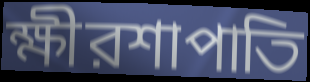
ক্ষীরশাপাতি